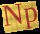
Np